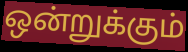
ஒன்றுக்கும்